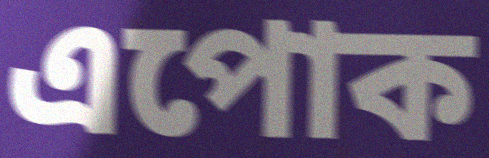
এপোক